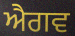
ਐਗਵ